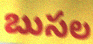
బుసల